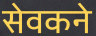
सेवकने